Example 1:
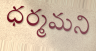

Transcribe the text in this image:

ధర్మమని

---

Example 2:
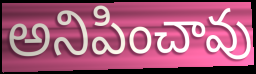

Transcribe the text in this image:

అనిపించావు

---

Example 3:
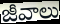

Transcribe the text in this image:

జీవాలు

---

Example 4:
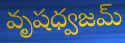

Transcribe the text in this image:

వృషధ్వజమ్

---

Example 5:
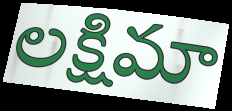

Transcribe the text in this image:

లక్షిమా